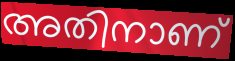
അതിനാണ്